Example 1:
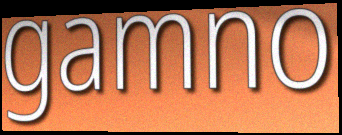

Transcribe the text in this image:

gamno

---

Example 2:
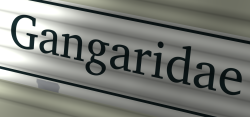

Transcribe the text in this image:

Gangaridae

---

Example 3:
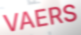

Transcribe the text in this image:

VAERS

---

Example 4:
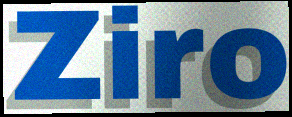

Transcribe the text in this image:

Ziro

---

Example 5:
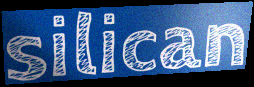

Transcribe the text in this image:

silican